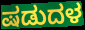
ಷಡುದಳ